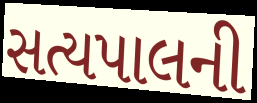
સત્યપાલની